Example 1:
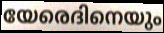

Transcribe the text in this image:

യേരെദിനെയും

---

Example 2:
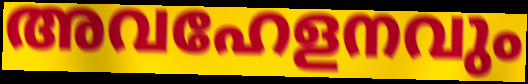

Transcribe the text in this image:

അവഹേളനവും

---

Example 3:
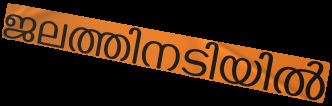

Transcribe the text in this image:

ജലത്തിനടിയിൽ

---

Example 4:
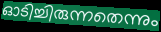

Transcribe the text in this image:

ഓടിച്ചിരുന്നതെന്നും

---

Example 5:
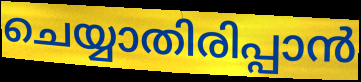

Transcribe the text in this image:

ചെയ്യാതിരിപ്പാൻ